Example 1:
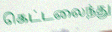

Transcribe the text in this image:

கெட்டலைந்து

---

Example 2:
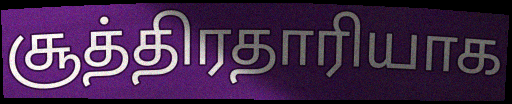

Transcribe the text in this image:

சூத்திரதாரியாக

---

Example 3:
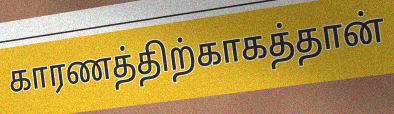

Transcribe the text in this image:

காரணத்திற்காகத்தான்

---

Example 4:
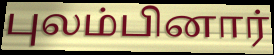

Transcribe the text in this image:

புலம்பினார்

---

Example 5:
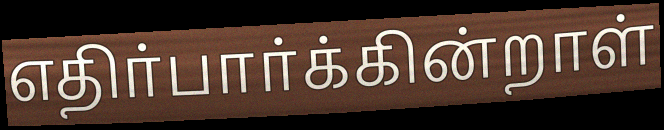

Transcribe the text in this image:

எதிர்பார்க்கின்றாள்